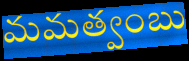
మమత్వంబు